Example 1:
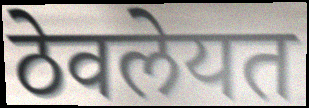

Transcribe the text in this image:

ठेवलेयत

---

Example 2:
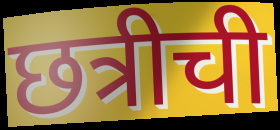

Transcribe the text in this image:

छत्रीची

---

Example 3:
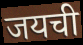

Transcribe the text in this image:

जयची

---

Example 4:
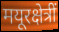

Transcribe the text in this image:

मयूरक्षेत्रीं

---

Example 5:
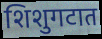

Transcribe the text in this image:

शिशुगटात